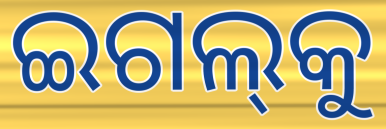
ଇଗଲ୍‌କୁ